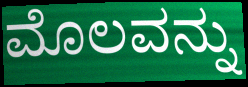
ಮೊಲವನ್ನು